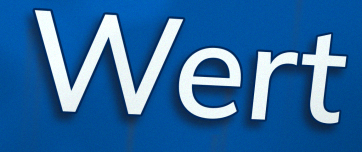
Wert